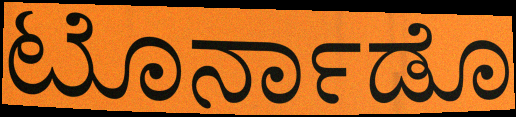
ಟೊರ್ನಾಡೊ